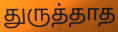
துருத்தாத